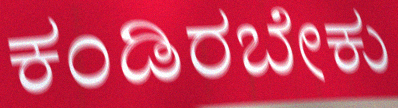
ಕಂಡಿರಬೇಕು